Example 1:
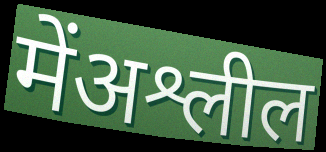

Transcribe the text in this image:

मेंअश्लील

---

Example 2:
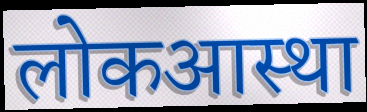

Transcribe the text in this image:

लोकआस्था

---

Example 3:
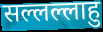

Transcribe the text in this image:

सल्लल्लाहु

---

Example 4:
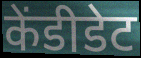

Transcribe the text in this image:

केंडीडेट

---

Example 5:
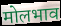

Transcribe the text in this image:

मोलभाव